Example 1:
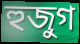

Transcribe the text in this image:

হুজুগ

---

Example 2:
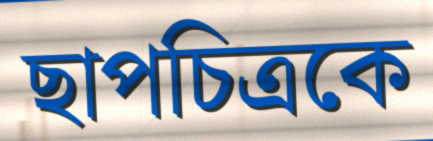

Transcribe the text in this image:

ছাপচিত্রকে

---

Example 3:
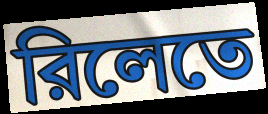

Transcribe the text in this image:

রিলেতে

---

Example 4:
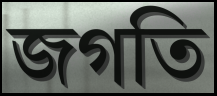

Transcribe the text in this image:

জগতি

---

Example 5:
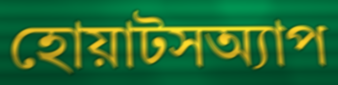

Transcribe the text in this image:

হোয়াটসঅ্যাপ